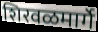
शिरवळमार्गे